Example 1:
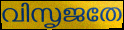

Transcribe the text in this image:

വിസൃജതേ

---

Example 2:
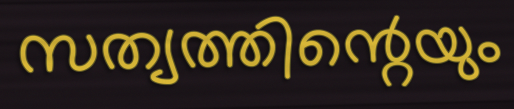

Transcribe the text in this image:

സത്യത്തിന്റെയും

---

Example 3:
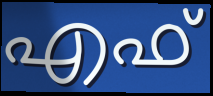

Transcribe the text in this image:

എഫ്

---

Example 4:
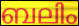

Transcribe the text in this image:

ബലിം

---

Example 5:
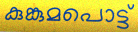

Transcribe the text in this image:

കുങ്കുമപൊട്ട്